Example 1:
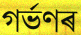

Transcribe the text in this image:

গৰ্ভণৰ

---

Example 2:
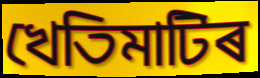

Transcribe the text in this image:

খেতিমাটিৰ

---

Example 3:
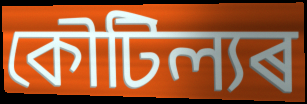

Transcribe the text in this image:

কৌটিল্যৰ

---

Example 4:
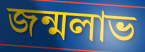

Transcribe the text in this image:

জন্মলাভ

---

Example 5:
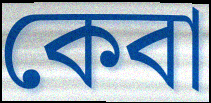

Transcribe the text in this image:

কেবা